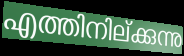
എത്തിനില്ക്കുന്നു